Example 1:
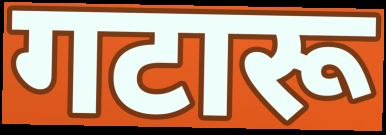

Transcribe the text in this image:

गटारू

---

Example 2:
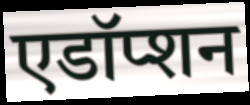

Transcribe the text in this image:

एडॉप्शन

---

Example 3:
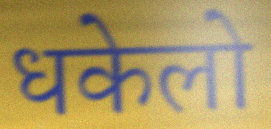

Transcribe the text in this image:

धकेलो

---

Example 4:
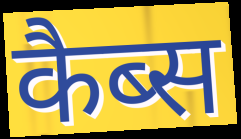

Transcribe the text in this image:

कैब्स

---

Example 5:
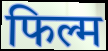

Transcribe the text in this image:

फिल्‍म